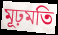
মূঢ়মতি